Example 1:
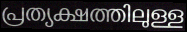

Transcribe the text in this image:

പ്രത്യക്ഷത്തിലുള്ള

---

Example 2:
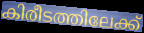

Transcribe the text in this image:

കിരീടത്തിലേക്ക്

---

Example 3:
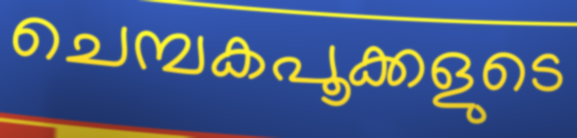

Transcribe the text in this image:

ചെമ്പകപൂക്കളുടെ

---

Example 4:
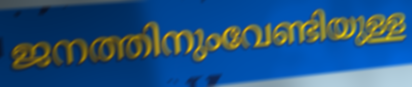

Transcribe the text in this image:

ജനത്തിനുംവേണ്ടിയുള്ള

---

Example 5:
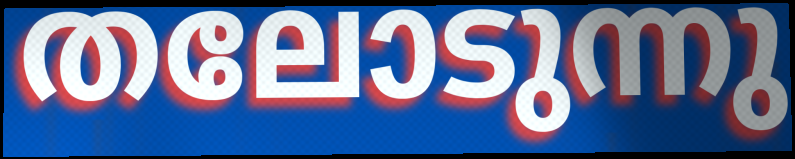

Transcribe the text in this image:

തലോടുന്നു